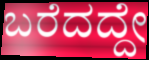
ಬರೆದದ್ದೇ